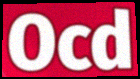
Ocd